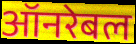
ऑनरेबल